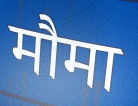
मौमा